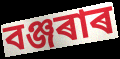
বঞ্জৰাৰ